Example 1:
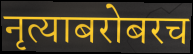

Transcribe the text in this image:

नृत्याबरोबरच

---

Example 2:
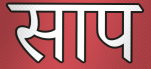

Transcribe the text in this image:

साप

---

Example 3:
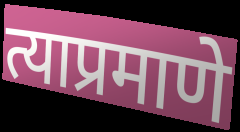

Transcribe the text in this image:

त्याप्रमाणे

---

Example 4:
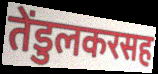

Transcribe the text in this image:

तेंडुलकरसह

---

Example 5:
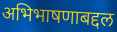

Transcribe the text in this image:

अभिभाषणाबद्दल